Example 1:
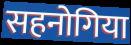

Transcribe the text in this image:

सहनोगिया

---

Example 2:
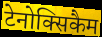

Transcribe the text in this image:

टेनोक्सिकैम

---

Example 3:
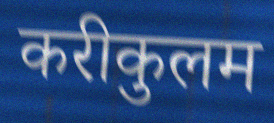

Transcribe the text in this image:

करीकुलम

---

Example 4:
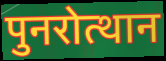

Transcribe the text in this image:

पुनरोत्थान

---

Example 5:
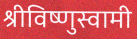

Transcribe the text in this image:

श्रीविष्णुस्वामी